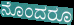
ನೊಂದರೂ